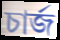
চার্জ